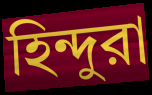
হিন্দুরা